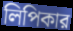
লিপিকার